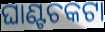
ଘାଣ୍ଟଚକଟା